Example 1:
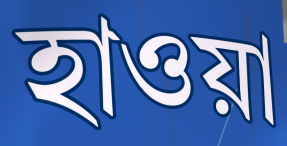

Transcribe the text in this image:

হাওয়া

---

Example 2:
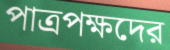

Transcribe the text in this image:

পাত্রপক্ষদের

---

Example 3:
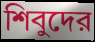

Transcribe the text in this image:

শিবুদের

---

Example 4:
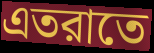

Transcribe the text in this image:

এতরাতে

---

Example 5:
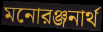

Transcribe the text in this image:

মনোরঞ্জনার্থ